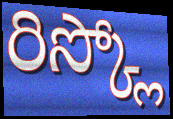
రిస్క్లో